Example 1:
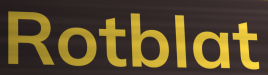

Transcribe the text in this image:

Rotblat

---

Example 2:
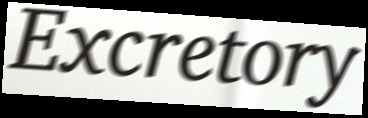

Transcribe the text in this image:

Excretory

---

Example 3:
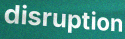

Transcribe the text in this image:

disruption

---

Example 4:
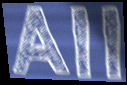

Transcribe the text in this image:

AII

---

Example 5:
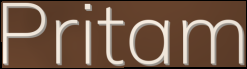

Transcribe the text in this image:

Pritam